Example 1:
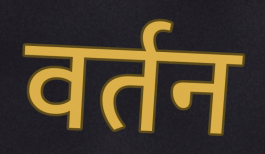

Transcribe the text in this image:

वर्तन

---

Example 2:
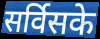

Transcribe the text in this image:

सर्विसके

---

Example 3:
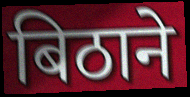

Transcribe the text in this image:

बिठाने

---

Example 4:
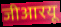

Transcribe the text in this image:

जीआरयू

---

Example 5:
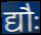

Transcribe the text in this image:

द्यौः